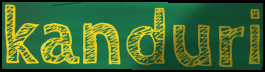
kanduri